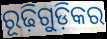
ରୂଢ଼ିଗୁଡ଼ିକର